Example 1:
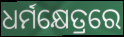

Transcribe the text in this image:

ଧର୍ମକ୍ଷେତ୍ରରେ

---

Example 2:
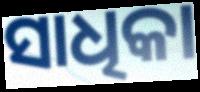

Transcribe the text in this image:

ସାଧିକା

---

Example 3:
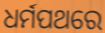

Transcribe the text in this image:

ଧର୍ମପଥରେ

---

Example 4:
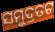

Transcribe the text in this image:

ସମୁଦ୍ରତଟ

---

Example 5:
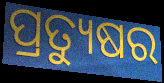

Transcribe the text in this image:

ପ୍ରତ୍ୟୁଷର